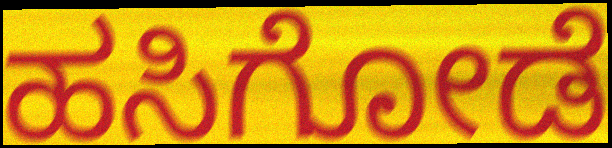
ಹಸಿಗೋಡೆ